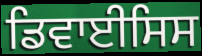
ਡਿਵਾਈਸਿਸ